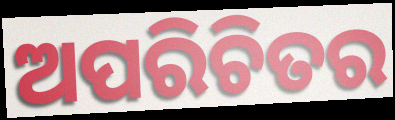
ଅପରିଚିତର